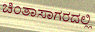
ಚಿಂತಾಸಾಗರದಲ್ಲಿ